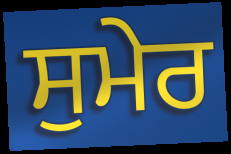
ਸੁਮੇਰ